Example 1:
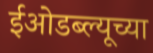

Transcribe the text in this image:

ईओडब्ल्यूच्या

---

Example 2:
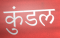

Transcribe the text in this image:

कुंडल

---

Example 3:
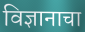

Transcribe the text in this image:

विज्ञानाचा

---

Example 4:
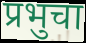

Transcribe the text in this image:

प्रभुचा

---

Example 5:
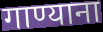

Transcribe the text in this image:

गाण्याना